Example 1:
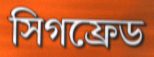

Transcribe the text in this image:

সিগফ্রেড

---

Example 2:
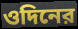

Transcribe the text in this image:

ওদিনের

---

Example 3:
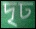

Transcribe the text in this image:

দৃঢ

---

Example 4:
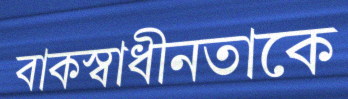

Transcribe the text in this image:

বাকস্বাধীনতাকে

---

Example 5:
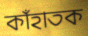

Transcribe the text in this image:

কাঁহাতক